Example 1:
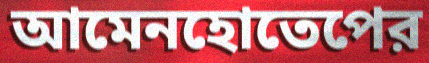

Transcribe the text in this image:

আমেনহোতেপের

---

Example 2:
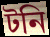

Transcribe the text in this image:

টনি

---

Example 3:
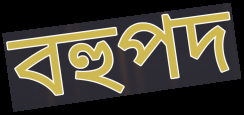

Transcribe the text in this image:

বহুপদ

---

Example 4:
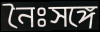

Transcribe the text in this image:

নৈঃসঙ্গে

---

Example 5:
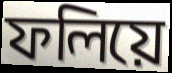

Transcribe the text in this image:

ফলিয়ে